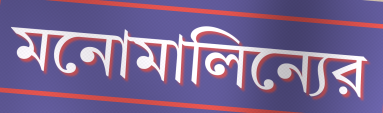
মনোমালিন্যের